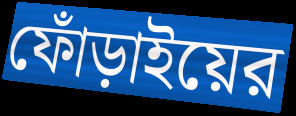
ফোঁড়াইয়ের